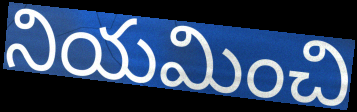
నియమించి